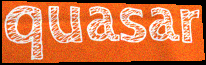
quasar